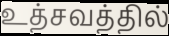
உத்சவத்தில்